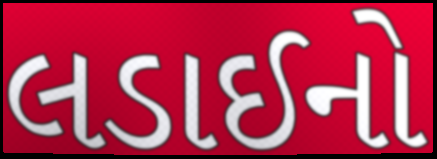
લડાઈનો